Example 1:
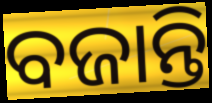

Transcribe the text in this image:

ବଜାନ୍ତି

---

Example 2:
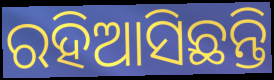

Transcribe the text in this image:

ରହିଆସିଛନ୍ତି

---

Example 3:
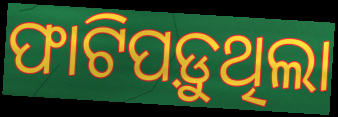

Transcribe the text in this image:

ଫାଟିପଡ଼ୁଥିଲା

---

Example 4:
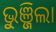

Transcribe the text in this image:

ଭୁଞ୍ଜିଲା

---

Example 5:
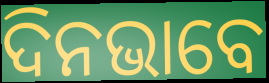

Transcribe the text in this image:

ଦିନଭାବେ